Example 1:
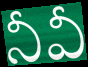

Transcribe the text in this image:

నీవీ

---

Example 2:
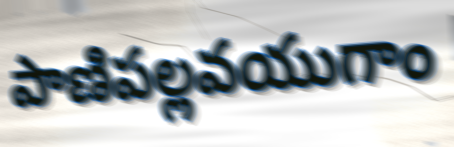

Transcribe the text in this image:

పాణిపల్లవయుగాం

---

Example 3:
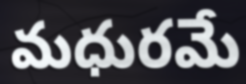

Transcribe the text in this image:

మధురమే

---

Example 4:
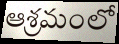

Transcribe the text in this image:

ఆశ్రమంలో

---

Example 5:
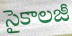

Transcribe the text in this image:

సైకాలజీ